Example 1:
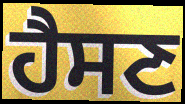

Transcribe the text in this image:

ਹੈਸਣ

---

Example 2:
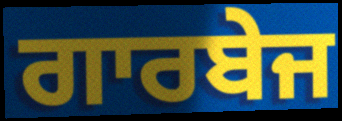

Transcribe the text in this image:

ਗਾਰਬੇਜ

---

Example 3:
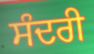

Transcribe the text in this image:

ਸੰਦਰੀ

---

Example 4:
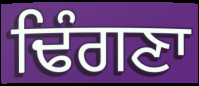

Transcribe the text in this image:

ਢਿੰਗਣਾ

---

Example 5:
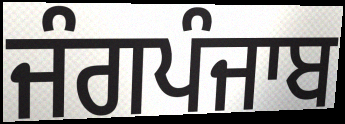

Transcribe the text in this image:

ਜੰਗਪੰਜਾਬ